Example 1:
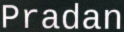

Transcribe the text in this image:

Pradan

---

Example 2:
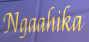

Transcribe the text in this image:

Ngaahika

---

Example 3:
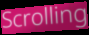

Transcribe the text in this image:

Scrolling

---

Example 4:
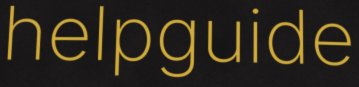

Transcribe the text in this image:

helpguide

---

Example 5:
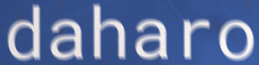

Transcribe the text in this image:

daharo